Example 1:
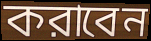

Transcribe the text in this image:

করাবেন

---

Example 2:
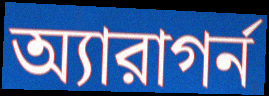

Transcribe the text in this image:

অ্যারাগর্ন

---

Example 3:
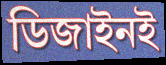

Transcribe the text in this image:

ডিজাইনই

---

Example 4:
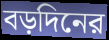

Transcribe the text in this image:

বড়দিনের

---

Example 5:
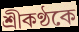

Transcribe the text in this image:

শ্রীকণ্ঠকে